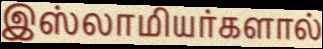
இஸ்லாமியர்களால்